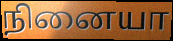
நினையா